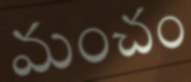
మంచం